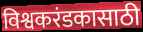
विश्वकरंडकासाठी